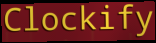
Clockify